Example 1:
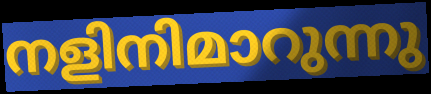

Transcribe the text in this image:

നളിനിമാറുന്നു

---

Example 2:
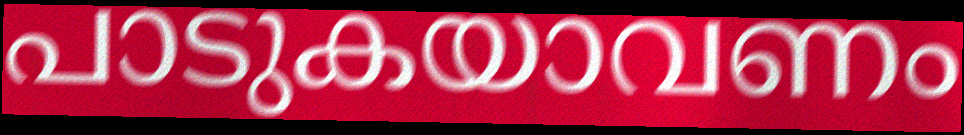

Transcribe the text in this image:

പാടുകയാവണം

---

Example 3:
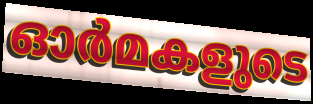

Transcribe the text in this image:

ഓർമകളുടെ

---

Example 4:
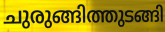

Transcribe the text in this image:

ചുരുങ്ങിത്തുടങ്ങി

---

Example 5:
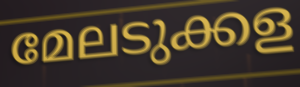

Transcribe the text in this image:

മേലടുക്കള